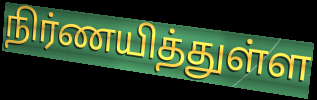
நிர்ணயித்துள்ள